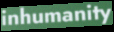
inhumanity